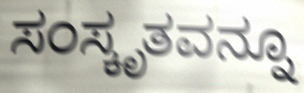
ಸಂಸ್ಕೃತವನ್ನೂ